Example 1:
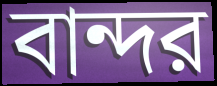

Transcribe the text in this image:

বান্দর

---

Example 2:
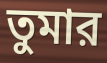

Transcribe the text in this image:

তুমার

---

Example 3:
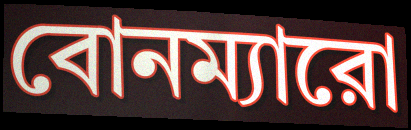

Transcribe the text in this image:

বোনম্যারো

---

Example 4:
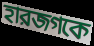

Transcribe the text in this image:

হারজগকে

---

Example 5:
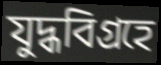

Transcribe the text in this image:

যুদ্ধবিগ্রহে